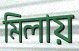
মিলায়